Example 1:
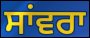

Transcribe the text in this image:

ਸਾਂਵਰਾ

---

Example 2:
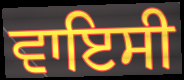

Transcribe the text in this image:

ਵਾਇਸੀ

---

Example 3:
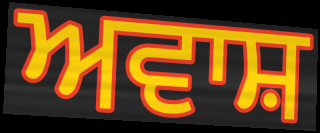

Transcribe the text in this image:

ਅਵਾਸ਼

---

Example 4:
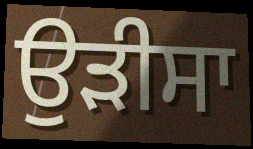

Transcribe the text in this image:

ਉੜੀਸਾ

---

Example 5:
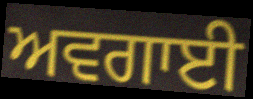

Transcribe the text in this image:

ਅਵਗਾਈ